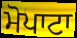
ਮੋਪਾਟਾ